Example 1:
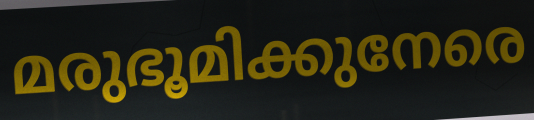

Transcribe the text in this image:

മരുഭൂമിക്കുനേരെ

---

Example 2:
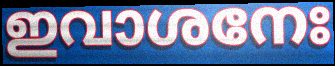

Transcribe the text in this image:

ഇവാശനേഃ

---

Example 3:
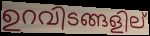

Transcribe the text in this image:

ഉറവിടങ്ങളില്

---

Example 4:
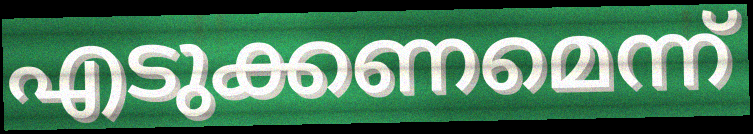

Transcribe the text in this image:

എടുക്കണമെന്ന്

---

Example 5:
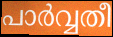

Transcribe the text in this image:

പാർവ്വതീ